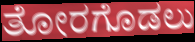
ತೋರಗೊಡಲು